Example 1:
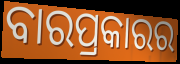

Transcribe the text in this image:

ବାରପ୍ରକାରର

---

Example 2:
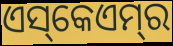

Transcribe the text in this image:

ଏସ୍‌କେଏମ୍‌ର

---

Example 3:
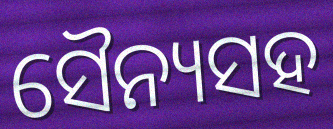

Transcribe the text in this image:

ସୈନ୍ୟସହ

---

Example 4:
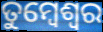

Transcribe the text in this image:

ତୁମ୍ବେଶ୍ଵର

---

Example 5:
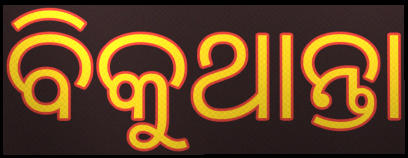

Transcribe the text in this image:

ବିକୁଥାନ୍ତା